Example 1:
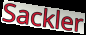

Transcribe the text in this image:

Sackler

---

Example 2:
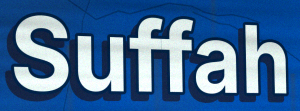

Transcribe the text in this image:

Suffah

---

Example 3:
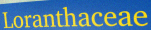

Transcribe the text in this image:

Loranthaceae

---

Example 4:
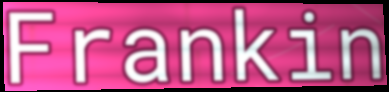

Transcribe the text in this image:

Frankin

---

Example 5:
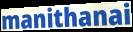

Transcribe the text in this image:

manithanai